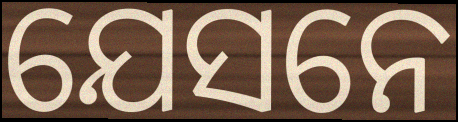
ଯେସନେ